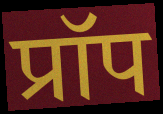
प्रॉप